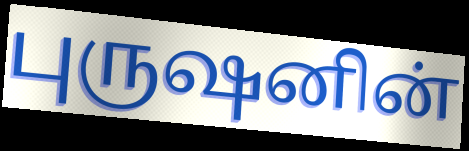
புருஷனின்